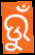
ଉୁଁ